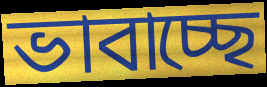
ভাবাচ্ছে